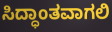
ಸಿದ್ಧಾಂತವಾಗಲಿ